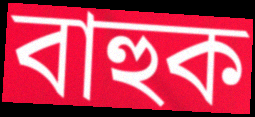
বাহুক